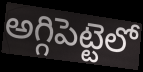
అగ్గిపెట్టెలో